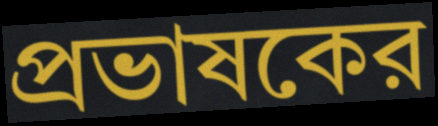
প্রভাষকের